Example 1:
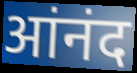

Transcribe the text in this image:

आंनंद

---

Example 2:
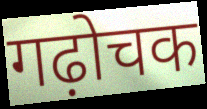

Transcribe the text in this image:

गढ़ोचक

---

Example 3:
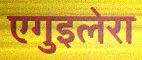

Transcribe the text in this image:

एगुइलेरा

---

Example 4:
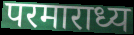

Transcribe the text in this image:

परमाराध्य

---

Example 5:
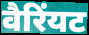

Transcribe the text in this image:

वैरिंयट